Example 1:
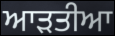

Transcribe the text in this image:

ਆੜਤੀਆ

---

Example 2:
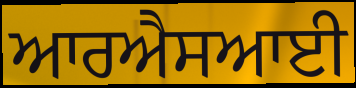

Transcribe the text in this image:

ਆਰਐਸਆਈ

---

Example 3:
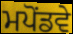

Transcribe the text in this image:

ਮਪੋਂਡਵੇ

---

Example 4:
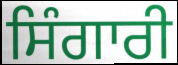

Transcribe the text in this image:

ਸਿੰਗਾਰੀ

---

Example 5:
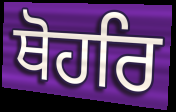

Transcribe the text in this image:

ਥੋਹਰਿ